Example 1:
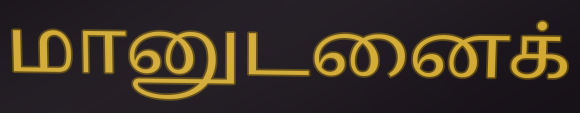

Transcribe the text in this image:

மானுடனைக்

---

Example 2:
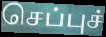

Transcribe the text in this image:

செப்புச்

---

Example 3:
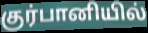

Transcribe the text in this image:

குர்பானியில்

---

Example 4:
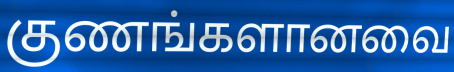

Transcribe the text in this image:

குணங்களானவை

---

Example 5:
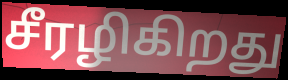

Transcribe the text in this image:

சீரழிகிறது